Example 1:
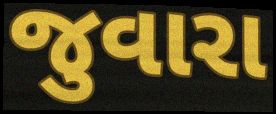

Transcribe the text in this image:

જુવારા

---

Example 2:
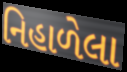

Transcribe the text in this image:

નિહાળેલા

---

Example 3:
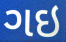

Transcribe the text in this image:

ગઇ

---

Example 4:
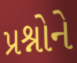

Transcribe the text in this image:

પ્રશ્નોને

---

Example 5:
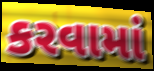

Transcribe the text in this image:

કરવામાં